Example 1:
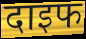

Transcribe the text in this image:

दाइफ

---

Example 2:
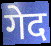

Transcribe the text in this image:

गेद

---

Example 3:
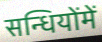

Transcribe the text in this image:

सन्धियोंमें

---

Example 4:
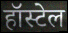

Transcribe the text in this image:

हॉस्टेल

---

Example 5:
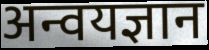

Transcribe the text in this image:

अन्वयज्ञान